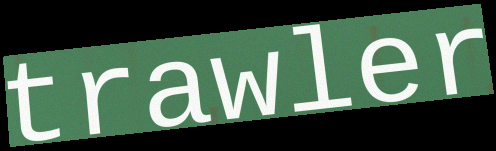
trawler